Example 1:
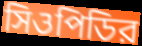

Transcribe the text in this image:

সিওপিডির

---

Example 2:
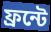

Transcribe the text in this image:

ফ্রন্টে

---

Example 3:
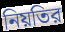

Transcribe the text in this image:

নিয়তির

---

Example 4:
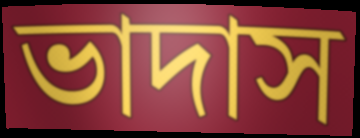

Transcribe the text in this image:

ভাদাস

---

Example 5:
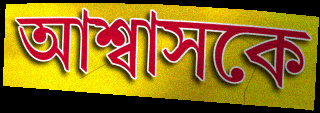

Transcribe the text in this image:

আশ্বাসকে